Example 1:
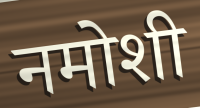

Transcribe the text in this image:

नमोशी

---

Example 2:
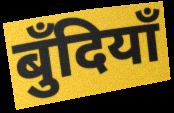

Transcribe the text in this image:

बुँदियाँ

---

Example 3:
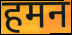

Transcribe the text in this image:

हमन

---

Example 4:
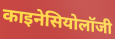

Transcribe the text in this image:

काइनेसियोलॉजी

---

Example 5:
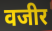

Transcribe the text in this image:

वजीर